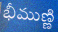
భీముణ్ణి